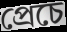
প্ৰেচে